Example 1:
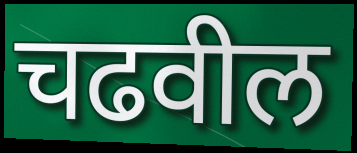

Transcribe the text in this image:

चढवील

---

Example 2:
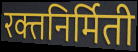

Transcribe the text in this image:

रक्तनिर्मिती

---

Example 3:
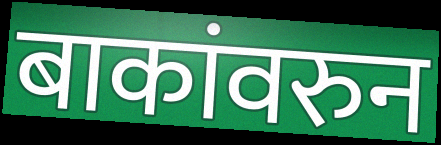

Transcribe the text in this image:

बाकांवरुन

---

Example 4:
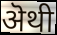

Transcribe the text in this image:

ऄथी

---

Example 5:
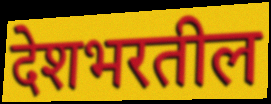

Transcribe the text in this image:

देशभरतील